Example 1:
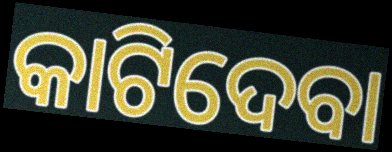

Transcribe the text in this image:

କାଟିଦେବା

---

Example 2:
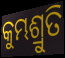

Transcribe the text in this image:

କୁମ୍ଭଶ୍ରୁତି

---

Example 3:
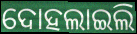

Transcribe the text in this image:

ଦୋହଲାଇଲି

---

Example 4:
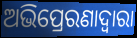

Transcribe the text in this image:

ଅଭିପ୍ରେରଣାଦ୍ୱାରା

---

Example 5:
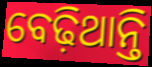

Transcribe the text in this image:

ବେଢ଼ିଥାନ୍ତି